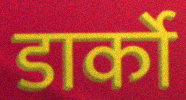
डार्को